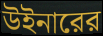
উইনারের